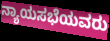
ನ್ಯಾಯಸಭೆಯವರು